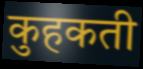
कुहकती